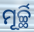
ମୂର୍ଚ୍ଛି